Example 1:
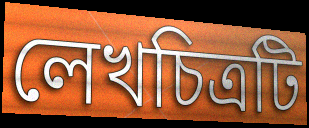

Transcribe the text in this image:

লেখচিত্রটি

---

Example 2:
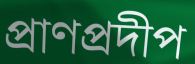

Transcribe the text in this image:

প্রাণপ্রদীপ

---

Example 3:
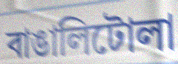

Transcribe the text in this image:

বাঙালিটোলা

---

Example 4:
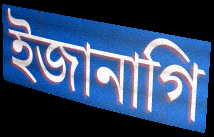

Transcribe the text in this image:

ইজানাগি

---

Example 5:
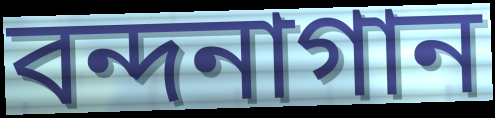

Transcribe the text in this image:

বন্দনাগান